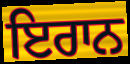
ਇਰਾਨ